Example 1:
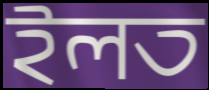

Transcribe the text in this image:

ইলত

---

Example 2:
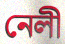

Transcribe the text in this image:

নেলী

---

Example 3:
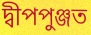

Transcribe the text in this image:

দ্বীপপুঞ্জত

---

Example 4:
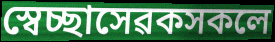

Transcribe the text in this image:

স্বেচ্ছাসেৱকসকলে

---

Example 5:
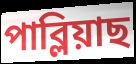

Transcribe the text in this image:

পাব্লিয়াছ